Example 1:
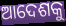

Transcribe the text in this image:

ଆଦେଶକୁ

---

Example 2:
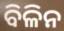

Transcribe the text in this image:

ବିଳିନ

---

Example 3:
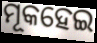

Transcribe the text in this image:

ମୂକହେଇ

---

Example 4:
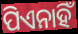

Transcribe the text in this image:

ପିଏନାହିଁ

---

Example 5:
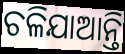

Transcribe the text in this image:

ଚଳିଯାଆନ୍ତି